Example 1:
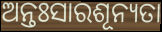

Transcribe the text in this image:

ଅନ୍ତଃସାରଶୂନ୍ୟତା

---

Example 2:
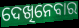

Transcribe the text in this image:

ଦେଖିନେବାର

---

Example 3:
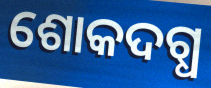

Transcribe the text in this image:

ଶୋକଦଗ୍ଧ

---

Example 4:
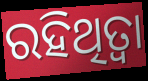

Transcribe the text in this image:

ରହିଥିତ୍ବା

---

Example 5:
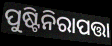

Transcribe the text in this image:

ପୁଷ୍ଟିନିରାପତ୍ତା